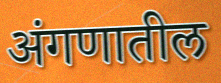
अंगणातील